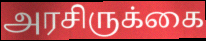
அரசிருக்கை